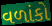
વળાંકો